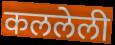
कललेली